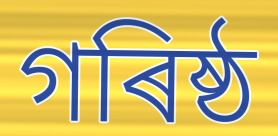
গৰিষ্ঠ